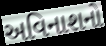
અવિનાશનો